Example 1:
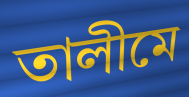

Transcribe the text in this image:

তালীমে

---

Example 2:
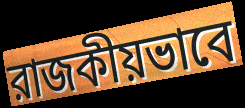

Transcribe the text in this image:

রাজকীয়ভাবে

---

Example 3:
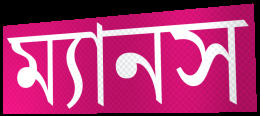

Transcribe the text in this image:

ম্যানস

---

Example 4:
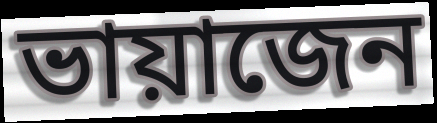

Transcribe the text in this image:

ভায়াজেন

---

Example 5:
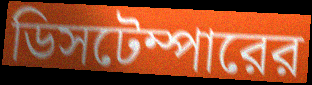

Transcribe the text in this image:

ডিসটেম্পারের